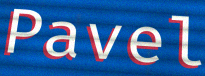
Pavel